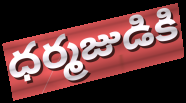
ధర్మజుడికి